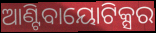
ଆଣ୍ଟିବାୟୋଟିକ୍ସର